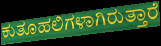
ಕುತೂಹಲಿಗಳಾಗಿರುತ್ತಾರೆ